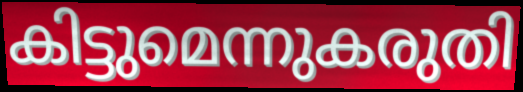
കിട്ടുമെന്നുകരുതി